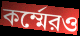
কর্ম্মেরও